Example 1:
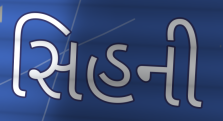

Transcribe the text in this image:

સિહની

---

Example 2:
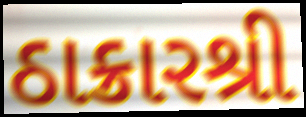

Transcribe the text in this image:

ઠાક્રારશ્રી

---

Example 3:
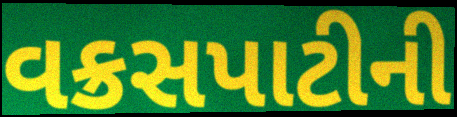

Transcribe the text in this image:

વક્રસપાટીની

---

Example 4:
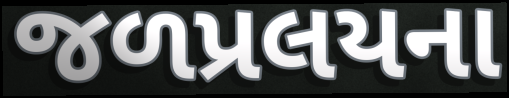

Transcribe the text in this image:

જળપ્રલયના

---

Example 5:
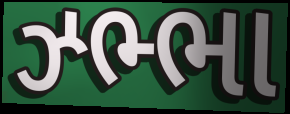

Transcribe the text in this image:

ઝ્ભ્ભા